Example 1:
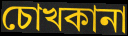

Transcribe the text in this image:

চোখকানা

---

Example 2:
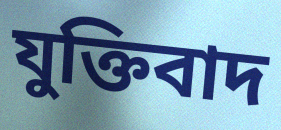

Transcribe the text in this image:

যুক্তিবাদ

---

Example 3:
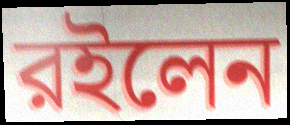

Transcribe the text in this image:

রইলেন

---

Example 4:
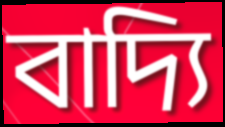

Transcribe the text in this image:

বাদ্যি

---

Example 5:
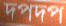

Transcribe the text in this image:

দপদপ